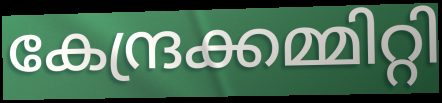
കേന്ദ്രക്കമ്മിറ്റി